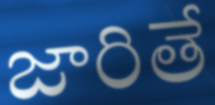
జారితే